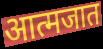
आत्मजात